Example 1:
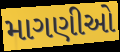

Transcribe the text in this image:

માગણીઓ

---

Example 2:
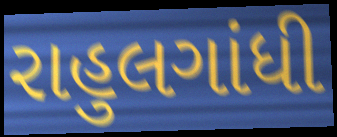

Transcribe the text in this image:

રાહુલગાંધી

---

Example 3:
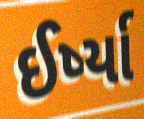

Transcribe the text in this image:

ઈર્ષ્યા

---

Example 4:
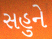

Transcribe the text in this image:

સહુને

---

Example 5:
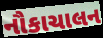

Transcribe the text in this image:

નૌકાચાલન